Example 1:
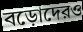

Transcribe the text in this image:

বড়োদেরও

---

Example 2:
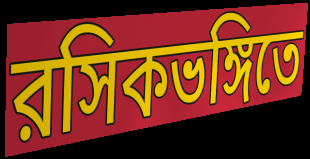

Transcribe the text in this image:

রসিকভঙ্গিতে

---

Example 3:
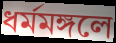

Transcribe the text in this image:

ধর্মমঙ্গলে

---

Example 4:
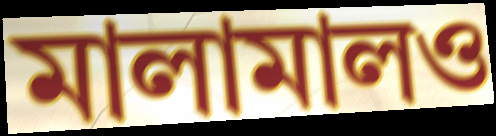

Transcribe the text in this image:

মালামালও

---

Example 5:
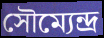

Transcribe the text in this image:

সৌম্যেন্দ্র